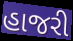
હાજરી